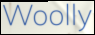
Woolly